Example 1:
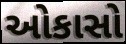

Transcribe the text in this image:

ઓકાસો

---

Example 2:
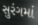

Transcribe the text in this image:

સુરંગમાં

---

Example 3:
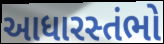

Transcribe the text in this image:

આધારસ્તંભો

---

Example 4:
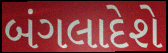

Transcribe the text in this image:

બંગલાદેશે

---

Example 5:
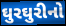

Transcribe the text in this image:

ઘુરઘુરીનો